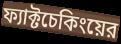
ফ্যাক্টচেকিংয়ের